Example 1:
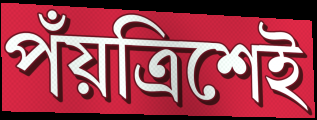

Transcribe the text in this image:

পঁয়ত্রিশেই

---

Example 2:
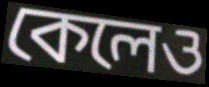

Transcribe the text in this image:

কেলেও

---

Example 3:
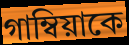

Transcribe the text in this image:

গাম্বিয়াকে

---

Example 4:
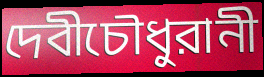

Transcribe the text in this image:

দেবীচৌধুরানী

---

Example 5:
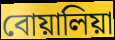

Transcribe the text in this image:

বোয়ালিয়া